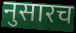
नुसारच